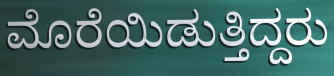
ಮೊರೆಯಿಡುತ್ತಿದ್ದರು